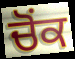
ਚੋਂਕ